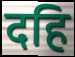
दहि